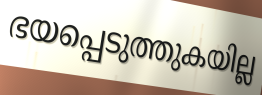
ഭയപ്പെടുത്തുകയില്ല